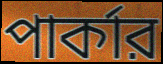
পার্কার